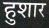
हुशार